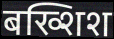
बख्शिश